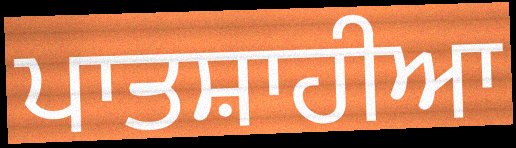
ਪਾਤਸ਼ਾਹੀਆ